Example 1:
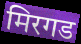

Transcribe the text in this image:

मिरगड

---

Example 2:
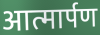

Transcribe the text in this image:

आत्मार्पण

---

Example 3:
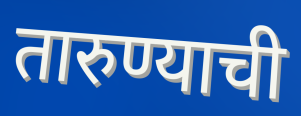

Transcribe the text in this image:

तारुण्याची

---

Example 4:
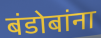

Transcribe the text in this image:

बंडोबांना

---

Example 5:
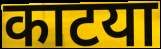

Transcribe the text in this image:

काटया